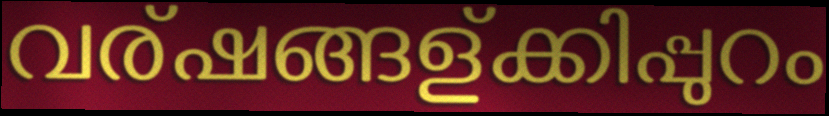
വര്ഷങ്ങള്ക്കിപ്പുറം